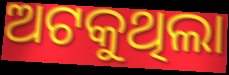
ଅଟକୁଥିଲା